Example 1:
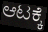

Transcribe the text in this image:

ಆಟಕ್ಕೆ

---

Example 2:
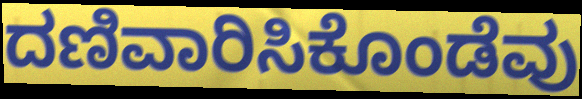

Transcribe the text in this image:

ದಣಿವಾರಿಸಿಕೊಂಡೆವು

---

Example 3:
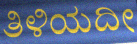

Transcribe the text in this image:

ತಿಳಿಯದೀ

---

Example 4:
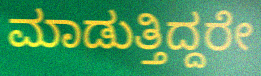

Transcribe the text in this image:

ಮಾಡುತ್ತಿದ್ದರೇ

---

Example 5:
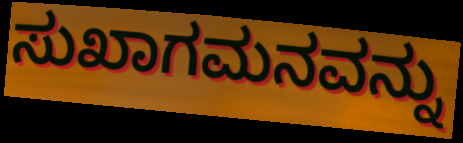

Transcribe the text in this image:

ಸುಖಾಗಮನವನ್ನು